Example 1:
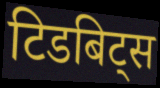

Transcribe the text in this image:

टिडबिट्स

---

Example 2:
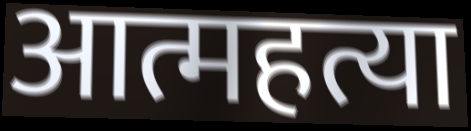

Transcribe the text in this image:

आत्महत्या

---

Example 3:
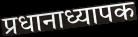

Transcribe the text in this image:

प्रधानाध्यापक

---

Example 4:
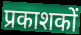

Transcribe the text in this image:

प्रकाशकों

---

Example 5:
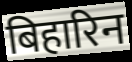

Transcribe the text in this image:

बिहारिन